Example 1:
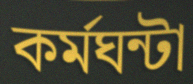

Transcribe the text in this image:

কর্মঘন্টা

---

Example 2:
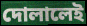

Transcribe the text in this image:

দোলালেই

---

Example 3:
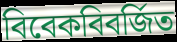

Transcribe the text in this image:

বিবেকবিবর্জিত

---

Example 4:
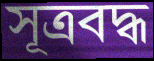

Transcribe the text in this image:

সূত্রবদ্ধ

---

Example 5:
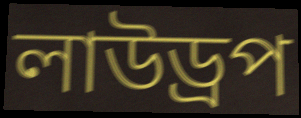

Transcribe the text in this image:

লাউড্রপ